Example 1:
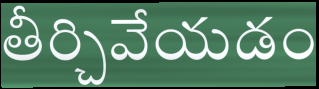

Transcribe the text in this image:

తీర్చివేయడం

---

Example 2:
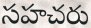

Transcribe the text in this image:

సహచరు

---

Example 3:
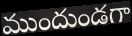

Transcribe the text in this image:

ముందుండగా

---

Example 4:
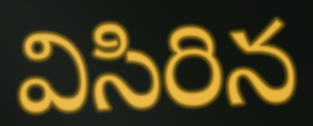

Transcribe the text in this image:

విసిరిన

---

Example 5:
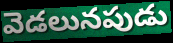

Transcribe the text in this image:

వెడలునపుడు